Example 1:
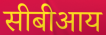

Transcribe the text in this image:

सीबीआय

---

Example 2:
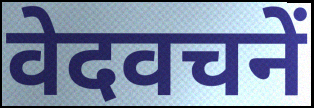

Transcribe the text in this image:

वेदवचनें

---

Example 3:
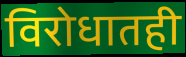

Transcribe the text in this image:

विरोधातही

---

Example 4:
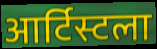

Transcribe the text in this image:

आर्टिस्टला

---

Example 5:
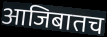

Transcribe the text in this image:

आजिबातच